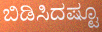
ಬಿಡಿಸಿದಷ್ಟೂ